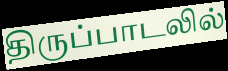
திருப்பாடலில்